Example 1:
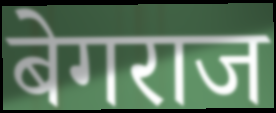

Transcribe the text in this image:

बेगराज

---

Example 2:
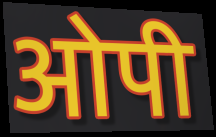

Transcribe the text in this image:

ओपी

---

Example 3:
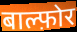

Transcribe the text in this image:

बाल्फ़ोर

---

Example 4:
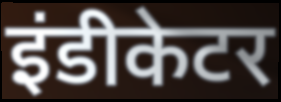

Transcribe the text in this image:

इंडीकेटर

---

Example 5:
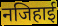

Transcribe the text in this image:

नजिहाई